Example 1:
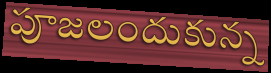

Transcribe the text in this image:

పూజలందుకున్న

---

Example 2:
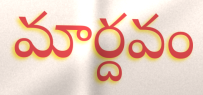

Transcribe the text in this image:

మార్దవం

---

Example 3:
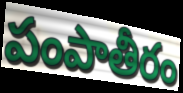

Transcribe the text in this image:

పంపాతీరం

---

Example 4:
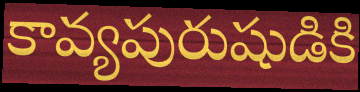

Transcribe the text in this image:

కావ్యపురుషుడికి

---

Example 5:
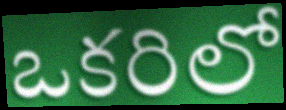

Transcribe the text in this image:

ఒకరిలో